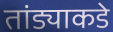
तांड्याकडे